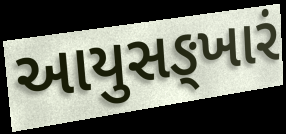
આયુસઙ્ખારં